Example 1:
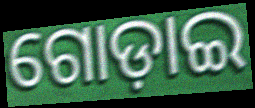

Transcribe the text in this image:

ଗୋଡ଼ାଇ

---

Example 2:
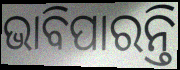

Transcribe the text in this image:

ଭାବିପାରନ୍ତି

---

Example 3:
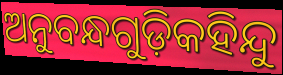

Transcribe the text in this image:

ଅନୁବନ୍ଧଗୁଡ଼ିକହିନ୍ଦୁ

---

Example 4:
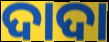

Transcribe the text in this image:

ଦାଦା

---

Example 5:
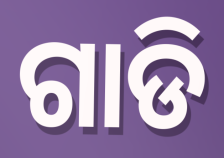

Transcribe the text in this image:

ଗାଡି